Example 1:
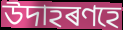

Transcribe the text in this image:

উদাহৰণহে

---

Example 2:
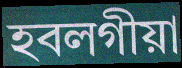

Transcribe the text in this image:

হবলগীয়া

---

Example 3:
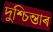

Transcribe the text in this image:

দুশ্চিন্তাৰ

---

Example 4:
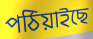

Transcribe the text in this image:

পঠিয়াইছে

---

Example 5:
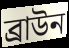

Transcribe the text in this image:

ব্ৰাউন